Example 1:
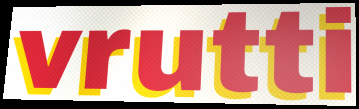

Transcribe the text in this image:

vrutti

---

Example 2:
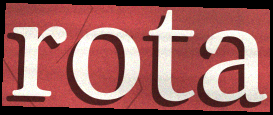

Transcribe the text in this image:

rota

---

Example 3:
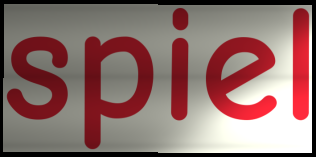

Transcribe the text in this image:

spiel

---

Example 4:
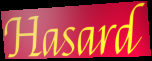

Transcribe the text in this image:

Hasard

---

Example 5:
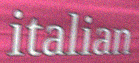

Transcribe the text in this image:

italian